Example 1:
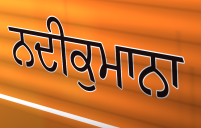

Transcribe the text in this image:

ਨਦੀਕੁਮਾਨਾ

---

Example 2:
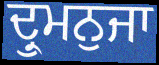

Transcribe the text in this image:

ਦ੍ਰੁਮਨੁਜਾ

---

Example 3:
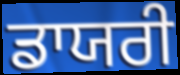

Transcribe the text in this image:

ਡਾਯਰੀ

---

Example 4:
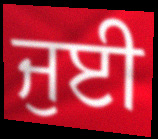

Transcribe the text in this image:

ਜੁਈ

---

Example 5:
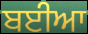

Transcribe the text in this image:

ਬਈਆ